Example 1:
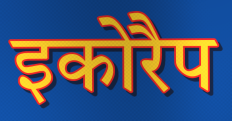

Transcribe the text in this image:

इकोरैप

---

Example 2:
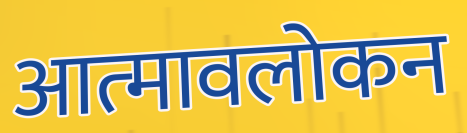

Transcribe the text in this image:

आत्‍मावलोकन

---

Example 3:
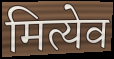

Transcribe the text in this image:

मित्येव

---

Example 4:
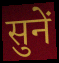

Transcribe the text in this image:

सुनें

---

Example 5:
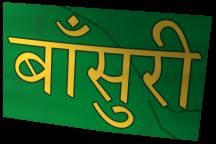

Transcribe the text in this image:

बॉंसुरी